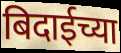
बिदाईच्या